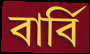
বার্বি